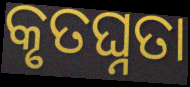
କୃତଘ୍ନତା